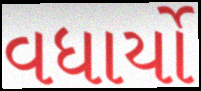
વધાર્યો